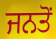
ਜਨਤੋਂ